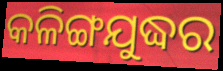
କଳିଙ୍ଗଯୁଦ୍ଧର